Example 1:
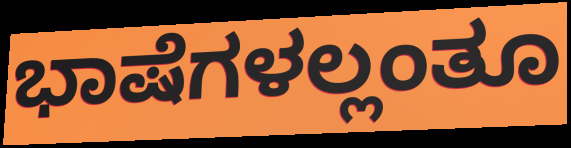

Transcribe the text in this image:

ಭಾಷೆಗಳಲ್ಲಂತೂ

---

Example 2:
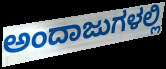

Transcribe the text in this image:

ಅಂದಾಜುಗಳಲ್ಲಿ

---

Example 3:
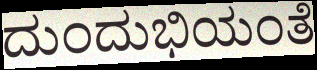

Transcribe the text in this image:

ದುಂದುಭಿಯಂತೆ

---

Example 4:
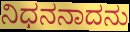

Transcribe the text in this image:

ನಿಧನನಾದನು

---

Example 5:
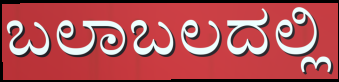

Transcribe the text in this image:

ಬಲಾಬಲದಲ್ಲಿ